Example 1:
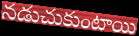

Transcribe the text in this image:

నడుచుకుంటాయి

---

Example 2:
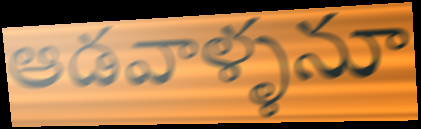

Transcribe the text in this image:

ఆడవాళ్ళనూ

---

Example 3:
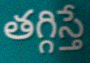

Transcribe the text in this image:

తగ్గిస్తే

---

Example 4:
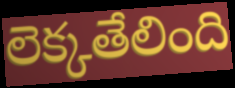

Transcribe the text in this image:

లెక్కతేలింది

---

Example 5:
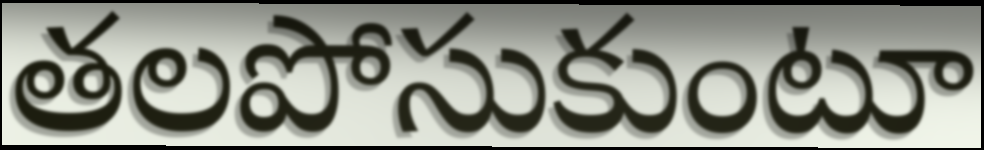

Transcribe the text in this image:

తలపోసుకుంటూ